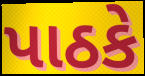
પાઠકે